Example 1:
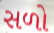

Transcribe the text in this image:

સળો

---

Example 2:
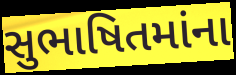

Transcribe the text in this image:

સુભાષિતમાંના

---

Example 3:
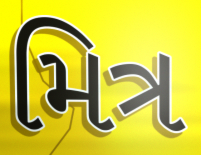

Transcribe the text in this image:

મિત્ર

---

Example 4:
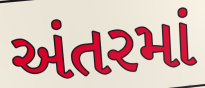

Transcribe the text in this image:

અંતરમાં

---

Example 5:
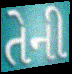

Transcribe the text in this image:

તેની